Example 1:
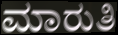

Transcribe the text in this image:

ಮಾರುತಿ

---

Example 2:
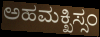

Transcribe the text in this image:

ಅಹಮಕ್ಖಿಸ್ಸಂ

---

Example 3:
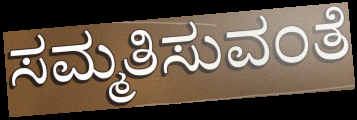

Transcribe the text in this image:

ಸಮ್ಮತಿಸುವಂತೆ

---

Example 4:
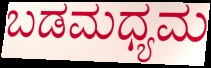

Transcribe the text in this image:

ಬಡಮಧ್ಯಮ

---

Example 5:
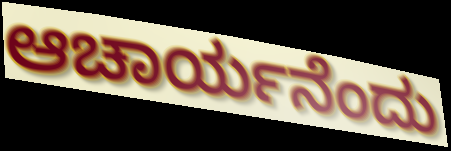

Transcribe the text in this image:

ಆಚಾರ್ಯನೆಂದು